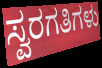
ಸ್ವರಗತಿಗಳು